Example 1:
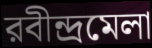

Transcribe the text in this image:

রবীন্দ্রমেলা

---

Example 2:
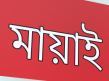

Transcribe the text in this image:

মায়াই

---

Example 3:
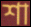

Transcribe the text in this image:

শা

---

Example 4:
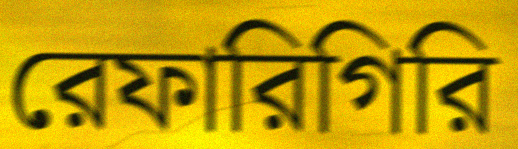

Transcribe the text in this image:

রেফারিগিরি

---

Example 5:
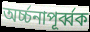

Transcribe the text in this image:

অর্চ্চনাপূর্ব্বক